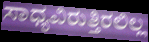
ಸಾಧ್ಯವಿರುತ್ತಿರಲಿಲ್ಲ